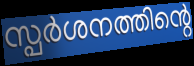
സ്പർശനത്തിന്റെ